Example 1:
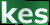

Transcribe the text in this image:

kes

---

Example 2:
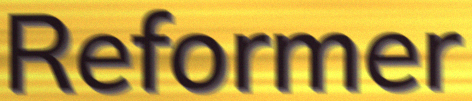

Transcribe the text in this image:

Reformer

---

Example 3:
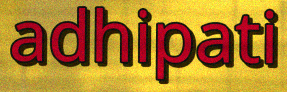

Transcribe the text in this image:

adhipati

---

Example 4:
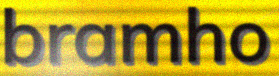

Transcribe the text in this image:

bramho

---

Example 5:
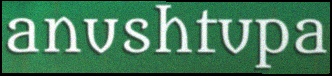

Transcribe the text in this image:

anushtupa